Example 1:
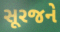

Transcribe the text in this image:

સૂરજને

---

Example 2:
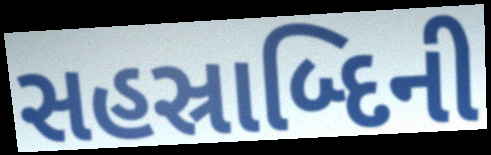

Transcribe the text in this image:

સહસ્રાબ્દિની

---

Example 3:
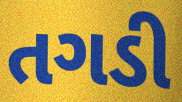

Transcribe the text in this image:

તગડી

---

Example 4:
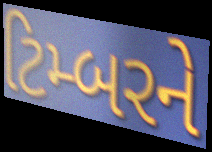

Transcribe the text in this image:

ટિમ્બરને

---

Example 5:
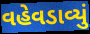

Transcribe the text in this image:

વહેવડાવ્યું